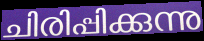
ചിരിപ്പിക്കുന്നു